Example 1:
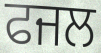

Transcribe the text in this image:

ਫਜਲ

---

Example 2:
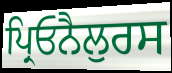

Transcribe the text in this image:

ਪ੍ਰਿਓਨੈਲੁਰਸ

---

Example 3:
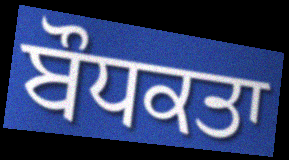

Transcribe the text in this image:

ਬੌਧਕਤਾ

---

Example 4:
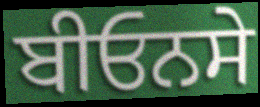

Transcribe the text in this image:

ਬੀਓਨਸੇ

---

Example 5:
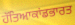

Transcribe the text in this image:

ਹੱਤਿਆਕਾਂਡਭਾਰਤ